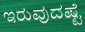
ಇರುವುದಷ್ಟೆ